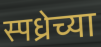
स्पध्रेच्या